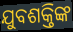
ଯୁବଶକ୍ତିଙ୍କ